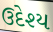
ઉદેશ્ય